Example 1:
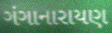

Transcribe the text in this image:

ગંગાનારાયણ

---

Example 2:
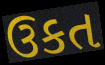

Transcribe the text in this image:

ઉકત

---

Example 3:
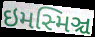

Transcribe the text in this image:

ઇમસ્મિઞ્ચ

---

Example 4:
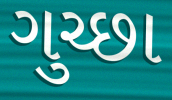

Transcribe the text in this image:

ગુચ્છા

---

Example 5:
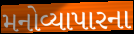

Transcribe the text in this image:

મનોવ્યાપારના